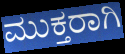
ಮುಕ್ತರಾಗಿ